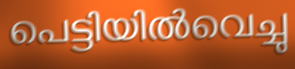
പെട്ടിയിൽവെച്ചു